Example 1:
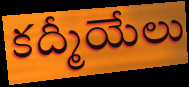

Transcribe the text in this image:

కద్మీయేలు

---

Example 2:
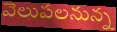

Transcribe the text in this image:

వెలుపలనున్న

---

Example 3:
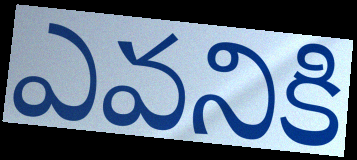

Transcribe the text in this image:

ఎవనికి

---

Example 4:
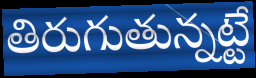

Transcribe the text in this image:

తిరుగుతున్నట్టే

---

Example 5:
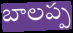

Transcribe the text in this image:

బాలప్ప